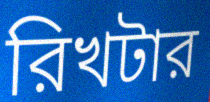
রিখটার